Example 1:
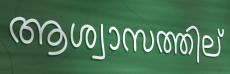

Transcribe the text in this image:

ആശ്വാസത്തില്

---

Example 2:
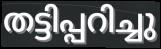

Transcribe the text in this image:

തട്ടിപ്പറിച്ചു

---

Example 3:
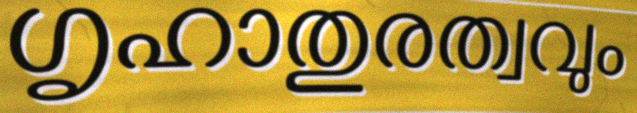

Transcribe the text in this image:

ഗൃഹാതുരത്വവും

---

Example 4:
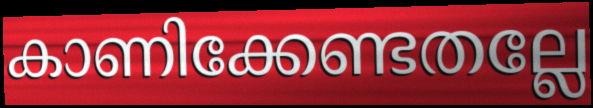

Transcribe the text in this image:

കാണിക്കേണ്ടതല്ലേ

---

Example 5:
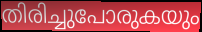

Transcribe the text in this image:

തിരിച്ചുപോരുകയും